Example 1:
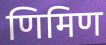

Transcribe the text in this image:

णिमिण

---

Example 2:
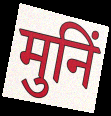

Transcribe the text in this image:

मुनिं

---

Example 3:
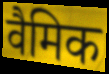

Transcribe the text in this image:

वैमिक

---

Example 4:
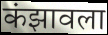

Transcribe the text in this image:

कंझावला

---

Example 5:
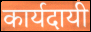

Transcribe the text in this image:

कार्यदायी